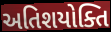
અતિશયોક્તિ